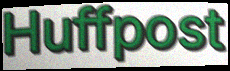
Huffpost